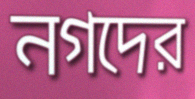
নগদের